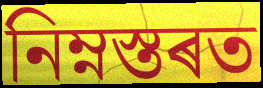
নিম্নস্তৰত